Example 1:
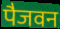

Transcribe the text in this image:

पैजवन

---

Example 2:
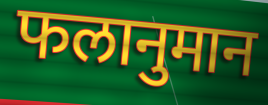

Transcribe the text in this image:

फलानुमान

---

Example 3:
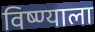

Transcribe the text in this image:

विष्ण्याला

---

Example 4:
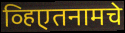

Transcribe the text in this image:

व्हिएतनामचे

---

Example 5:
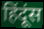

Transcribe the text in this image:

हिंदूंस